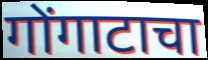
गोंगाटाचा